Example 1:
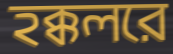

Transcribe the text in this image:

হক্কলরে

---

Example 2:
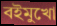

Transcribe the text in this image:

বইমুখো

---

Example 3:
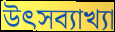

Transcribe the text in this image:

উৎসব্যাখ্যা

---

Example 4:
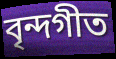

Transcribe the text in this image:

বৃন্দগীত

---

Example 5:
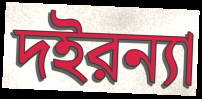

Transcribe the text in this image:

দইরন্যা